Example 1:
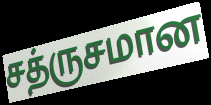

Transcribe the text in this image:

சத்ருசமான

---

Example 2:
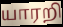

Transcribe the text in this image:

யாரறி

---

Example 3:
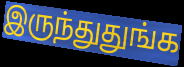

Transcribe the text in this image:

இருந்துதுங்க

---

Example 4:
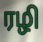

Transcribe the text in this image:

ரழி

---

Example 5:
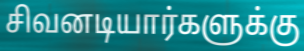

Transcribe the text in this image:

சிவனடியார்களுக்கு